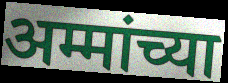
अम्मांच्या